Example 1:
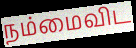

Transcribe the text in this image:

நம்மைவிட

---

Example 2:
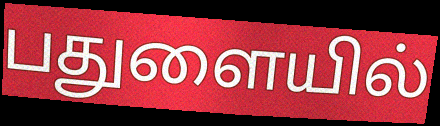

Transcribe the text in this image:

பதுளையில்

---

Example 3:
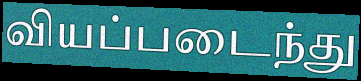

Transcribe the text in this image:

வியப்படைந்து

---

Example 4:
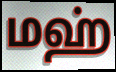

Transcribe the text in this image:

மஹ்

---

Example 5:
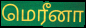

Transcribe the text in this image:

மெரீனா